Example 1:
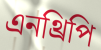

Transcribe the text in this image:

এনথ্রিপি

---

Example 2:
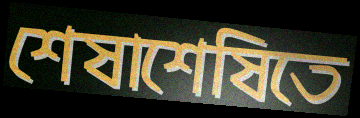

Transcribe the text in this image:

শেষাশেষিতে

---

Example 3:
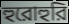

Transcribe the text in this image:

হুরোহুরি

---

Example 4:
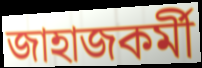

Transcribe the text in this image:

জাহাজকর্মী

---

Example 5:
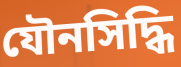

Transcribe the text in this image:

যৌনসিদ্ধি